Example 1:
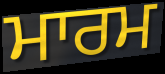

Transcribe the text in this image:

ਮਾਰਮ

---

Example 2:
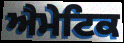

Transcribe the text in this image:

ਐਮੇਟਿਕ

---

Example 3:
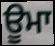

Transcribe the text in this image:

ਊਮਾ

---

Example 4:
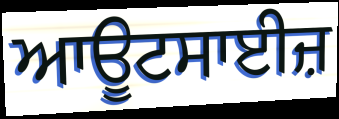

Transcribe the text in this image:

ਆਊਟਸਾਈਜ਼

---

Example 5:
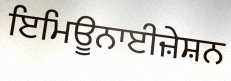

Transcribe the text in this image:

ਇਮਿਊਨਾਈਜ਼ੇਸ਼ਨ